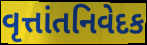
વૃત્તાંતનિવેદક